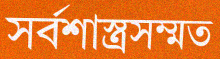
সর্বশাস্ত্রসম্মত